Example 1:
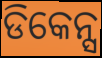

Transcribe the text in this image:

ଡିକେନ୍ସ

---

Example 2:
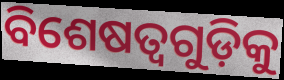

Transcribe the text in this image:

ବିଶେଷତ୍ୱଗୁଡ଼ିକୁ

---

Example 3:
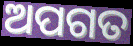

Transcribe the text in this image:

ଅପଗତ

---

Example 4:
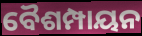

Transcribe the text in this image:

ବୈଶମ୍ପାୟନ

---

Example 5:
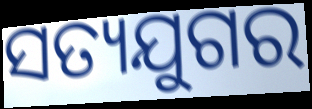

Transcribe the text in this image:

ସତ୍ୟଯୁଗର